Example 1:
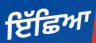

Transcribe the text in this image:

ਇੱਛਿਆ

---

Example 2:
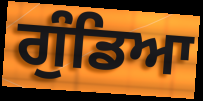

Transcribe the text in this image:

ਗੁੰਡਿਆ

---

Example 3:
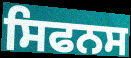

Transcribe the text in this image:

ਸਿਫਨਸ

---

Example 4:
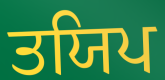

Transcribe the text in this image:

ਤਯਿਪ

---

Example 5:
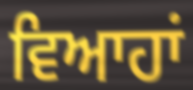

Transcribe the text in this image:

ਵਿਆਹਾਂ